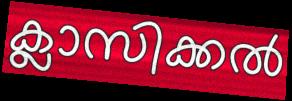
ക്ലാസിക്കൽ